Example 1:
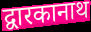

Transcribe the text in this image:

द्वारकानाथ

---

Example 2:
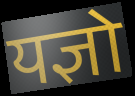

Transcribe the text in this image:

यज्ञो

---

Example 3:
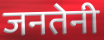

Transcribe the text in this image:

जनतेनी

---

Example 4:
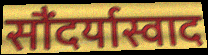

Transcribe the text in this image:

सौंदर्यास्वाद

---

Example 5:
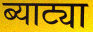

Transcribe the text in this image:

ब्याट्या